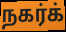
நகர்க்